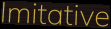
Imitative